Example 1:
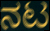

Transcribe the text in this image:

ನಟ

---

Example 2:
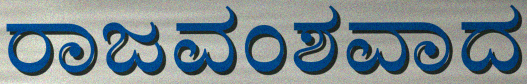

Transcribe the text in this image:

ರಾಜವಂಶವಾದ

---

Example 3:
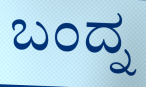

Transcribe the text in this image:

ಬಂದ್ನ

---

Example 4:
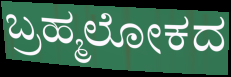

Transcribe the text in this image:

ಬ್ರಹ್ಮಲೋಕದ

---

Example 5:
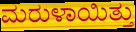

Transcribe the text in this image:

ಮರುಳಾಯಿತ್ತು